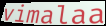
vimalaa